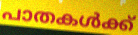
പാതകൾക്ക്